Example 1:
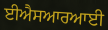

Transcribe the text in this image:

ਈਐਸਆਰਆਈ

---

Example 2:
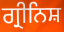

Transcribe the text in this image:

ਗ੍ਰੀਨਿਸ਼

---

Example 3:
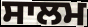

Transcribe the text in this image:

ਸਾਲਮ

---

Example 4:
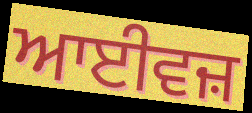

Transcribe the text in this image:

ਆਈਵਜ਼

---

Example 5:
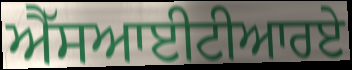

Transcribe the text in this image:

ਐੱਸਆਈਟੀਆਰਏ